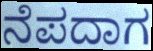
ನೆಪದಾಗ